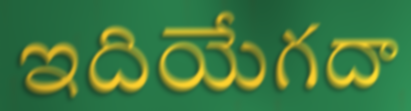
ఇదియేగదా